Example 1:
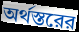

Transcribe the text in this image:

অর্থস্তরের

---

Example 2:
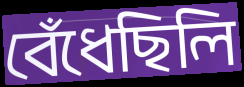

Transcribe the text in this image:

বেঁধেছিলি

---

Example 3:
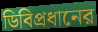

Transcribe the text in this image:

ডিবিপ্রধানের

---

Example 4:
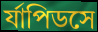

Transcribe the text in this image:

র্যাপিডসে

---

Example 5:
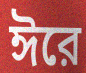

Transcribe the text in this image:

ঈরে